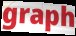
graph